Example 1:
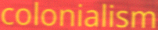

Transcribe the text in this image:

colonialism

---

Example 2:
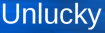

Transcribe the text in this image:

Unlucky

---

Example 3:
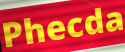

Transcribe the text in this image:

Phecda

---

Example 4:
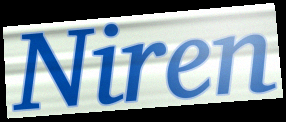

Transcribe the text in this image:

Niren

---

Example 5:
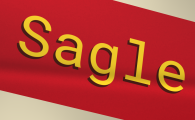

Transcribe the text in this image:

Sagle